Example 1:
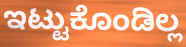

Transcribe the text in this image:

ಇಟ್ಟುಕೊಂಡಿಲ್ಲ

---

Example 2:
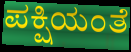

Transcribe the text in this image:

ಪಕ್ಷಿಯಂತೆ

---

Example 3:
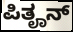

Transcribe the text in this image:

ಪಿತೄನ್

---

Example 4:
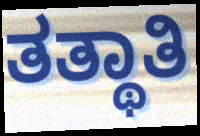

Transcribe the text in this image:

ತತ್ಥಾತಿ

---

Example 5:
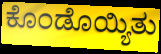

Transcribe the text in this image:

ಕೊಂಡೊಯ್ಯಿತು